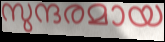
സുന്ദരമായ